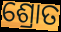
ଶ୍ରୋତ